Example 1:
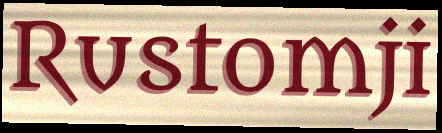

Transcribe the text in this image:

Rustomji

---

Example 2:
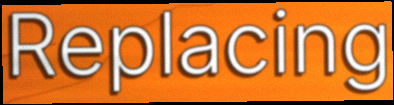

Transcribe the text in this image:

Replacing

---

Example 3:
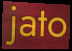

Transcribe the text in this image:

jato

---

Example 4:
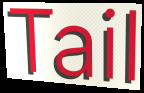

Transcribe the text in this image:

Tail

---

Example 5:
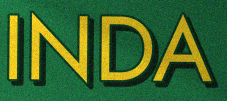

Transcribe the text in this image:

INDA